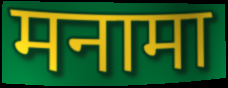
मनामा